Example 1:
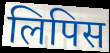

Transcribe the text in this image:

लिपिस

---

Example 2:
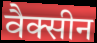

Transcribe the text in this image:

वैक्‍सीन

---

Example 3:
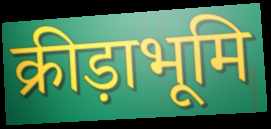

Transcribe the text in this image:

क्रीड़ाभूमि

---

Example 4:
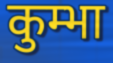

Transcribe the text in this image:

कुम्भा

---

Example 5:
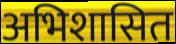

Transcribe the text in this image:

अभिशासित